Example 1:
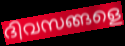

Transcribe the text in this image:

ദിവസങ്ങളെ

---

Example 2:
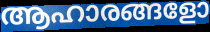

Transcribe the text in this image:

ആഹാരങ്ങളോ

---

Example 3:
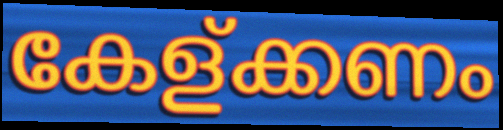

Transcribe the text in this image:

കേള്ക്കണം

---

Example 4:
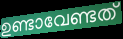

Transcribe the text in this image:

ഉണ്ടാവേണ്ടത്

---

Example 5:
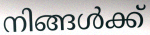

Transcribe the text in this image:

നിങ്ങൾക്ക്